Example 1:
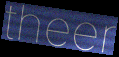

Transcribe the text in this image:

theer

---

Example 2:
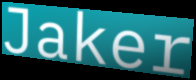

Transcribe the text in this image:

Jaker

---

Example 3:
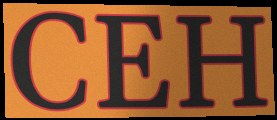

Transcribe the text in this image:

CEH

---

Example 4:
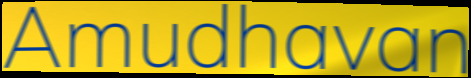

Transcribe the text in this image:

Amudhavan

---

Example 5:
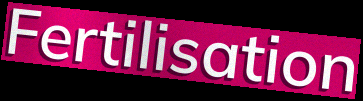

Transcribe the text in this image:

Fertilisation